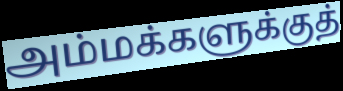
அம்மக்களுக்குத்